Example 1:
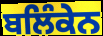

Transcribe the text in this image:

ਬਲਿੰਕੇਨ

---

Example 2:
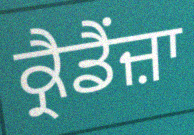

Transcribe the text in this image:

ਕ੍ਰੈਡੈਂਜ਼ਾ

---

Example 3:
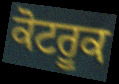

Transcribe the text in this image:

ਕੋਟਰੂਕ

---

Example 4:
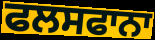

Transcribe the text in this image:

ਫਲਸਫਾਨਾ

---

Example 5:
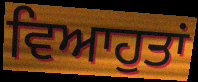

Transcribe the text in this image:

ਵਿਆਹੁਤਾਂ